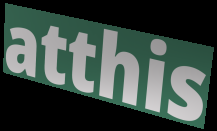
atthis